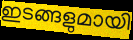
ഇടങ്ങളുമായി